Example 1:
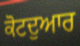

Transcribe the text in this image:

ਕੋਟਦੁਆਰ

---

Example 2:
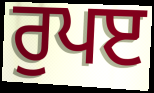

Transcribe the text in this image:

ਰੁਪੲ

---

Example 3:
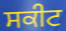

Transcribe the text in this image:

ਸਕੀਟ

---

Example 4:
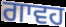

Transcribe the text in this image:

ਗਾਵਹ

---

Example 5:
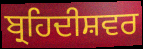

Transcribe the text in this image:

ਬ੍ਰਹਿਦੀਸ਼ਵਰ